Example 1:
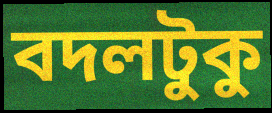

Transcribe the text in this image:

বদলটুকু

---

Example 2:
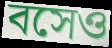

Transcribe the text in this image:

বসেও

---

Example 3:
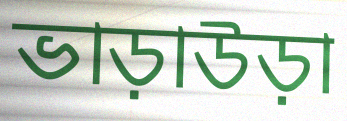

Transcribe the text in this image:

ভাড়াউড়া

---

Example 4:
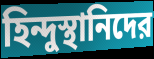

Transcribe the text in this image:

হিন্দুস্থানিদের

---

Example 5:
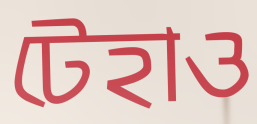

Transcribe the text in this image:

টেহাও